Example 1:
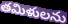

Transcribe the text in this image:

తమిళులను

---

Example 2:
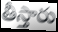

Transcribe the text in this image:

తీస్తారు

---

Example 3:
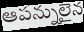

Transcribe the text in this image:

ఆపన్నులైన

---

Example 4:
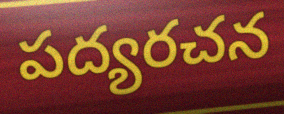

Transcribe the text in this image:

పద్యరచన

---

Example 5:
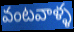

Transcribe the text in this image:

వంటవాళ్ళ